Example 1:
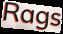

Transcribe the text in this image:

Rags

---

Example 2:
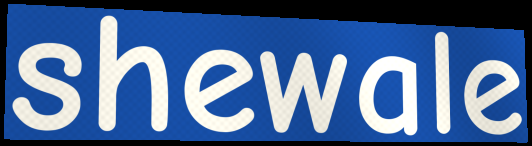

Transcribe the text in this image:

shewale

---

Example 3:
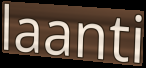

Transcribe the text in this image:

laanti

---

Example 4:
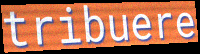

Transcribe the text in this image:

tribuere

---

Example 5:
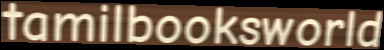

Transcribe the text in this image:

tamilbooksworld